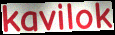
kavilok